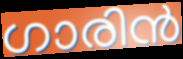
ഗാരിൻ